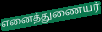
எனைத்துணையர்